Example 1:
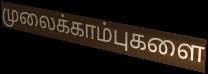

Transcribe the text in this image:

முலைக்காம்புகளை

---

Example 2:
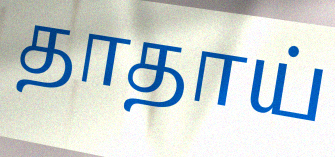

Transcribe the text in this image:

தாதாய்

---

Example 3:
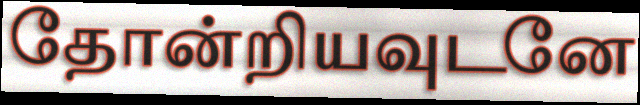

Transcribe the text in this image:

தோன்றியவுடனே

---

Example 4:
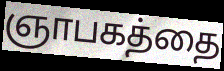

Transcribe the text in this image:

ஞாபகத்தை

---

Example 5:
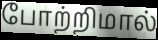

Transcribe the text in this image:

போற்றிமால்